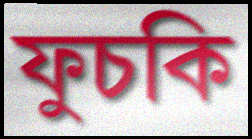
ফুচকি